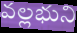
వల్లభుని